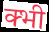
क्भी